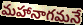
మహానాగమనే